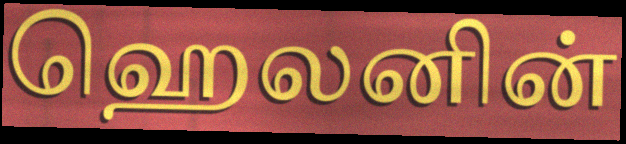
ஹெலனின்